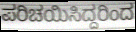
ಪರಿಚಯಿಸಿದ್ದರಿಂದ